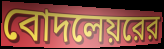
বোদলেয়রের